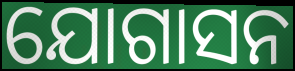
ଯୋଗାସନ